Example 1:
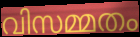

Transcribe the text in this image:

വിസമ്മതം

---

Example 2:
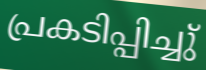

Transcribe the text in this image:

പ്രകടിപ്പിച്ചു്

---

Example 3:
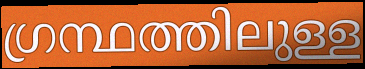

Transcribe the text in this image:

ഗ്രന്ഥത്തിലുള്ള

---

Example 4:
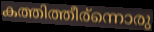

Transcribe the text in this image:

കത്തിത്തീര്ന്നൊരു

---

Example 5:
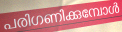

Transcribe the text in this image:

പരിഗണിക്കുമ്പോൾ